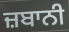
ਜ਼ਬਾਨੀ